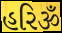
હરિૐ